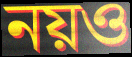
নয়ও